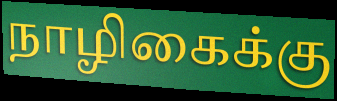
நாழிகைக்கு